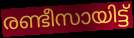
രണ്ടീസായിട്ട്